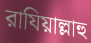
রাযিয়াল্লাহু